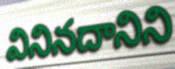
వినినదానిని